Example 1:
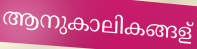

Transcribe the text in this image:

ആനുകാലികങ്ങള്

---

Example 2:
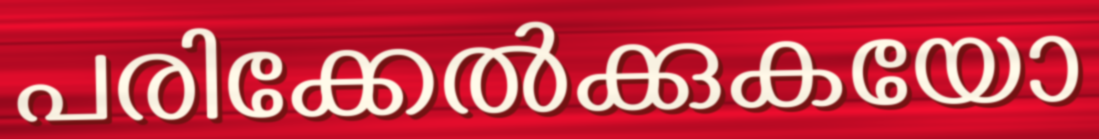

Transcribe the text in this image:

പരിക്കേൽക്കുകയോ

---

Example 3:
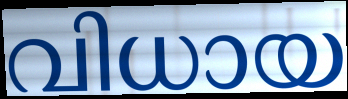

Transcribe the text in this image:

വിധായ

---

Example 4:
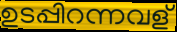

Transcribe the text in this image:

ഉടപ്പിറന്നവള്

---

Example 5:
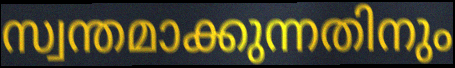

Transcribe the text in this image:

സ്വന്തമാക്കുന്നതിനും